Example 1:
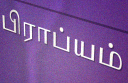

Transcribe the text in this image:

பிராப்யம்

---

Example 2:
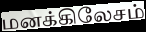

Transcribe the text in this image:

மனக்கிலேசம்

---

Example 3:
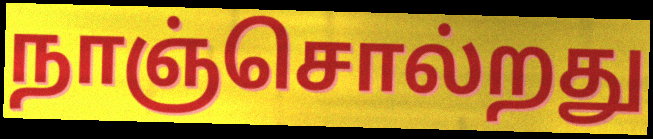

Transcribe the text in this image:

நாஞ்சொல்றது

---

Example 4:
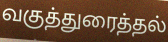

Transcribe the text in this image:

வகுத்துரைத்தல்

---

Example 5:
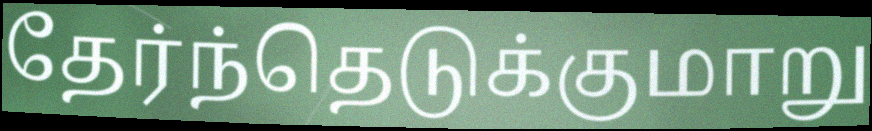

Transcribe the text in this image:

தேர்ந்தெடுக்குமாறு